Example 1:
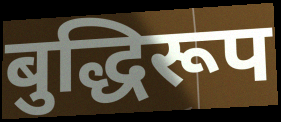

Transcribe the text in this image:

बुद्धिरूप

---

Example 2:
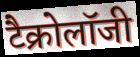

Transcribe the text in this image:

टैक्रोलॉजी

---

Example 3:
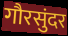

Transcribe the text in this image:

गौरसुंदर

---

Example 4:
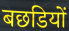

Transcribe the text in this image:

बछडियों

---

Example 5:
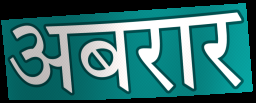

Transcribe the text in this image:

अबरार